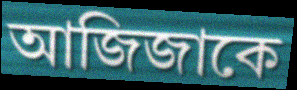
আজিজাকে